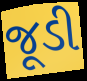
જૂડી